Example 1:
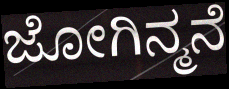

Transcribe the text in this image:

ಜೋಗಿನ್ಮನೆ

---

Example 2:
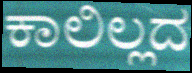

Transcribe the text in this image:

ಕಾಲಿಲ್ಲದ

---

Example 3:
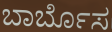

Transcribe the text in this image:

ಬಾರ್ಬೊಸ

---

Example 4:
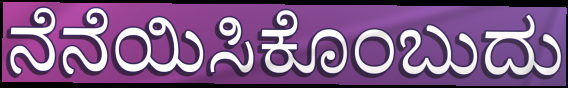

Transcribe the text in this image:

ನೆನೆಯಿಸಿಕೊಂಬುದು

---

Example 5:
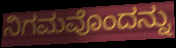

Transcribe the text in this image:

ನಿಗಮವೊಂದನ್ನು